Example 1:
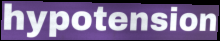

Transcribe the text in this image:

hypotension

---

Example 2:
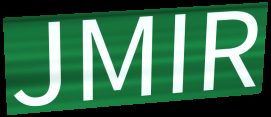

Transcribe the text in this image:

JMIR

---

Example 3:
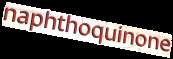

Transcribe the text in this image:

naphthoquinone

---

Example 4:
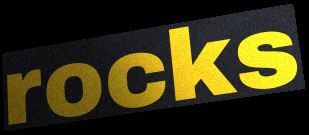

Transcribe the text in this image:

rocks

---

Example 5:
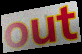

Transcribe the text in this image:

out